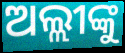
ଅଲ୍ଲୀଙ୍କୁ